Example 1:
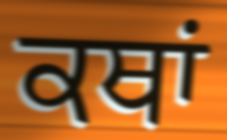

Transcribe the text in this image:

ਕਥਾਂ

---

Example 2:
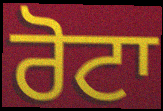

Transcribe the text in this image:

ਰੋਟਾ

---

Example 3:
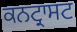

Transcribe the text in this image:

ਕਨਟ੍ਰਾਸਟ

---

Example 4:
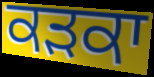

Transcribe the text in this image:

ਕੜਕਾ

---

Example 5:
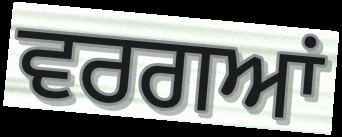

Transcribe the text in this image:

ਵਰਗਆਂ